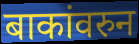
बाकांवरुन